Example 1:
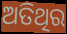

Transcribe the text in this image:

ଅତିଥିର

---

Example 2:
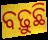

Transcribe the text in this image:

ବଢ଼ୁଛି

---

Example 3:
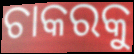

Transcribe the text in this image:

ଚାକରକୁ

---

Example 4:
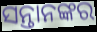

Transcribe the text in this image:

ସନ୍ତାନଙ୍କର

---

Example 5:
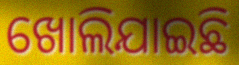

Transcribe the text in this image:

ଖୋଲିଯାଇଛି